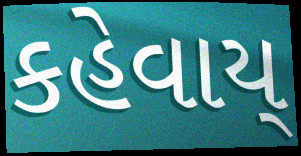
કહેવાય્